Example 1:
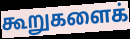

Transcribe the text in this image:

கூறுகளைக்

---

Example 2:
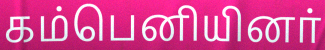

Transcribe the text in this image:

கம்பெனியினர்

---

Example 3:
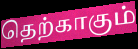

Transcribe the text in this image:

தெற்காகும்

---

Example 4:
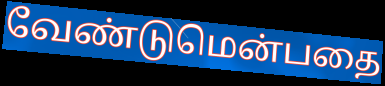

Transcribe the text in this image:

வேண்டுமென்பதை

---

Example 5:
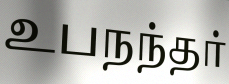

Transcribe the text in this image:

உபநந்தர்